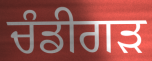
ਚੰਡੀਗਡ਼